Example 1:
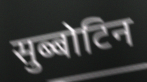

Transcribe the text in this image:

सुब्बोटिन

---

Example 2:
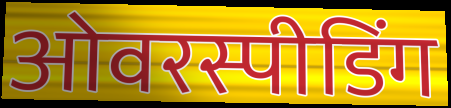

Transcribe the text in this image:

ओवरस्पीडिंग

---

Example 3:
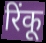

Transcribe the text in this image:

रिंकू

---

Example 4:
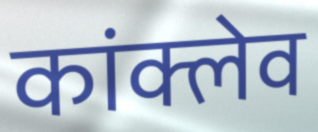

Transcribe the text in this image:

कांक्लेव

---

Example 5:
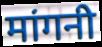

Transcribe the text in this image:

मांगनी